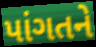
પાંગતને